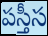
పస్తీస